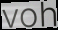
voh